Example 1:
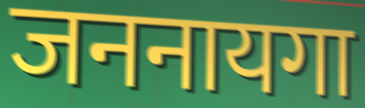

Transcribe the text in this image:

जननायगा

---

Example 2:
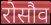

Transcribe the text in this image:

रोसौव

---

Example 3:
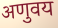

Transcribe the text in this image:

अणुवय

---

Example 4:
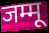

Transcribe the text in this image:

जम्‍मू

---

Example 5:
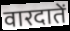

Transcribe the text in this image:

वारदातें